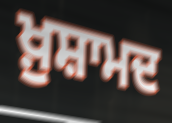
ਖ਼ੁਸ਼ਾਮਦ